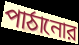
পাঠানোর